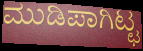
ಮುಡಿಪಾಗಿಟ್ಟ